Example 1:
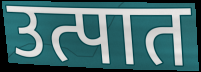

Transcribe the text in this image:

उत्पात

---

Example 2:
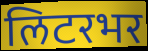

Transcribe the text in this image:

लिटरभर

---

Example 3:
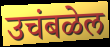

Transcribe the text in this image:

उचंबळेल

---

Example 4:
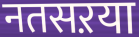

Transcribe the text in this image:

नतसऱया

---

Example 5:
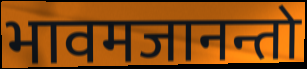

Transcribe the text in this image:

भावमजानन्तो